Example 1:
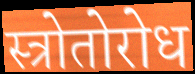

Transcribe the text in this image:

स्त्रोतोरोध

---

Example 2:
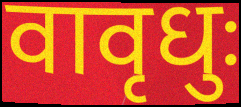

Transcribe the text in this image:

वावृधुः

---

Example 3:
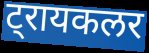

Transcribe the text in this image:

ट्रायकलर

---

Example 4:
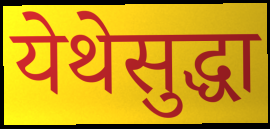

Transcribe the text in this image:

येथेसुद्धा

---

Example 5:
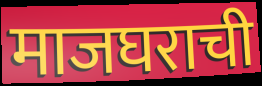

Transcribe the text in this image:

माजघराची